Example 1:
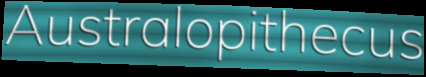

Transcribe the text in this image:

Australopithecus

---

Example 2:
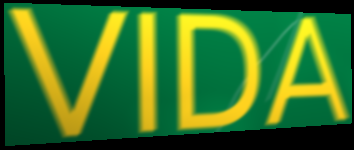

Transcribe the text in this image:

VIDA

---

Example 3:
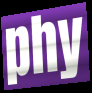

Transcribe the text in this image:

phy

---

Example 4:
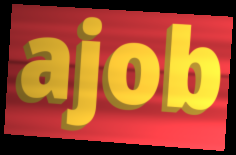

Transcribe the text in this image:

ajob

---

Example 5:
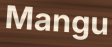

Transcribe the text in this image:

Mangu